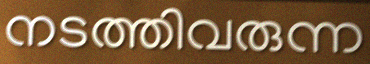
നടത്തിവരുന്ന